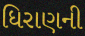
ધિરાણની